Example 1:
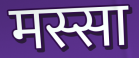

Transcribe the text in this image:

मस्‍सा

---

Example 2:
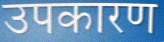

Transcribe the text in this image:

उपकारण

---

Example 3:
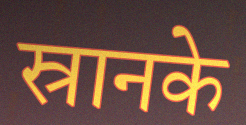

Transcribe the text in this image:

स्रानके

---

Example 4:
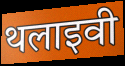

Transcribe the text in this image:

थलाइवी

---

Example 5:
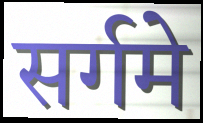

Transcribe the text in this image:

सर्गमे